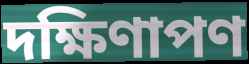
দক্ষিণাপণ